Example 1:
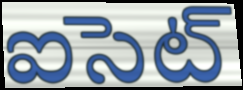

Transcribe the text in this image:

ఐసెట్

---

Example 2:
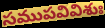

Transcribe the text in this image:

సముపవివిశుః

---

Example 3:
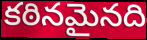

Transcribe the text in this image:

కఠినమైనది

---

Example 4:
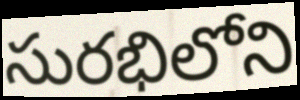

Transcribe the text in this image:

సురభిలోని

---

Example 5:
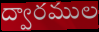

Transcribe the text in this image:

ద్వారముల